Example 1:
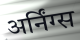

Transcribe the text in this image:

अर्निंग्स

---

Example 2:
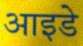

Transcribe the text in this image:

आइडे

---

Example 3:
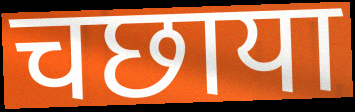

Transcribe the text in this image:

चछाया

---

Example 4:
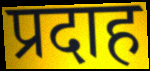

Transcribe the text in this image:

प्रदाह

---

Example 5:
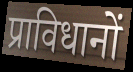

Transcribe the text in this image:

प्राविधानों